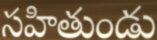
సహితుండు